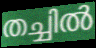
തച്ചിൽ